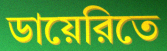
ডায়েরিতে